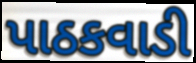
પાઠકવાડી